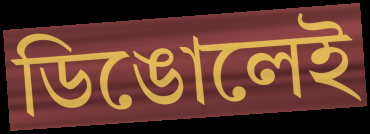
ডিঙোলেই